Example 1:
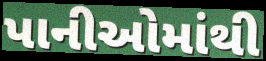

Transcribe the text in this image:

પાનીઓમાંથી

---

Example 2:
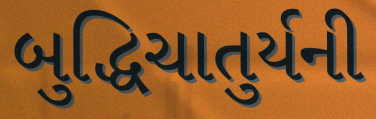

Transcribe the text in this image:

બુદ્ધિચાતુર્યની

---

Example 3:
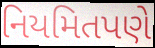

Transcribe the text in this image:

નિયમિતપણે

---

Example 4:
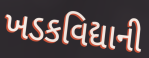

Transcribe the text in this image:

ખડકવિદ્યાની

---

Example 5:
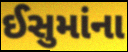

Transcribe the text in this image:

ઈસુમાંના